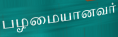
பழமையானவர்